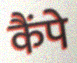
कैंपे